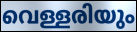
വെള്ളരിയും